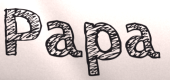
Papa